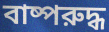
বাষ্পরুদ্ধ